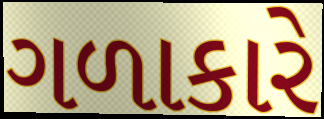
ગળાકારે